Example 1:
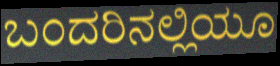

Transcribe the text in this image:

ಬಂದರಿನಲ್ಲಿಯೂ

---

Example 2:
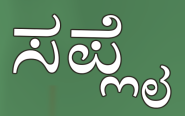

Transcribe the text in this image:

ಸಪ್ಲೈ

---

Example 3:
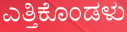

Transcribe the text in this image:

ಎತ್ತಿಕೊಂಡಳು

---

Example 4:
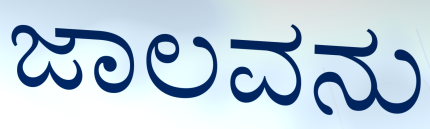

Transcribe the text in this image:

ಜಾಲವನು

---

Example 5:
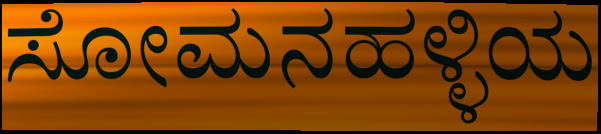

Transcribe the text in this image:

ಸೋಮನಹಳ್ಳಿಯ